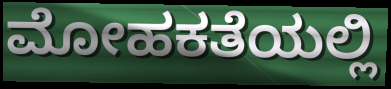
ಮೋಹಕತೆಯಲ್ಲಿ